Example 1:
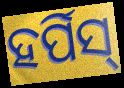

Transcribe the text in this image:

ହର୍ପିସ୍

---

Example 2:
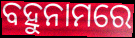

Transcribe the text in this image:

ବହୁନାମରେ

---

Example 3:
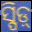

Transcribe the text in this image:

ସ୍ପିଡ଼୍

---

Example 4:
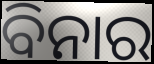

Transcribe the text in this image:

ବିନାର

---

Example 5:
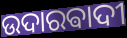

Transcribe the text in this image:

ଉଦାରଵାଦୀ